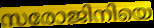
സരോജിനിയെ